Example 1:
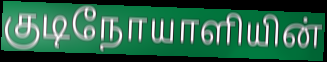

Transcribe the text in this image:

குடிநோயாளியின்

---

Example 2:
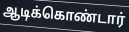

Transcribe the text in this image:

ஆடிக்கொண்டார்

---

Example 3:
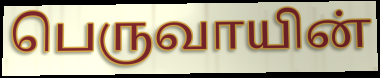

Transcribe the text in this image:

பெருவாயின்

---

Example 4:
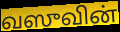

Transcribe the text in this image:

வஸுவின்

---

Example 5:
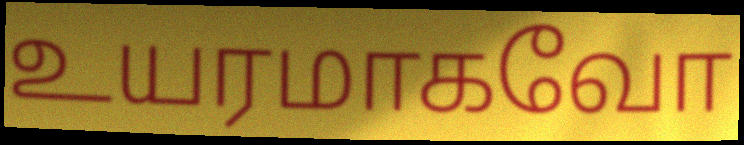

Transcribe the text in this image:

உயரமாகவோ